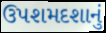
ઉપશમદશાનું